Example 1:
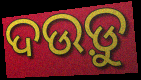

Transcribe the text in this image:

ଦଉଡ଼ୁ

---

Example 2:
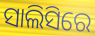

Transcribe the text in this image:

ସାଲିସିରେ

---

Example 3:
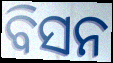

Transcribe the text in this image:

ବିସନ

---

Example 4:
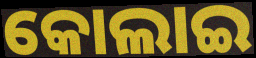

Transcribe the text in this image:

କୋଲାଇ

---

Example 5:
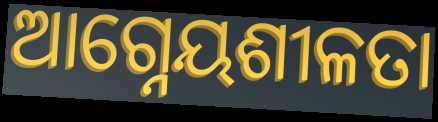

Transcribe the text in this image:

ଆଗ୍ନେୟଶୀଳତା